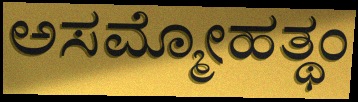
ಅಸಮ್ಮೋಹತ್ಥಂ